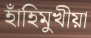
হাঁহিমুখীয়া